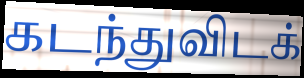
கடந்துவிடக்